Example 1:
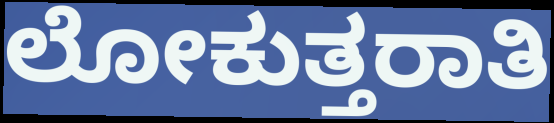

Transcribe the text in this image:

ಲೋಕುತ್ತರಾತಿ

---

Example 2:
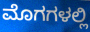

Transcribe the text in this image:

ಮೊಗಗಳಲ್ಲಿ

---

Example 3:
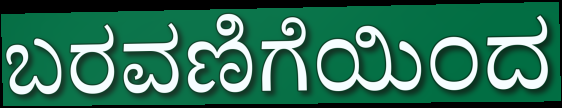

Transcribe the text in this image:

ಬರವಣಿಗೆಯಿಂದ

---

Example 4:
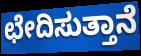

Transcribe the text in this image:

ಛೇದಿಸುತ್ತಾನೆ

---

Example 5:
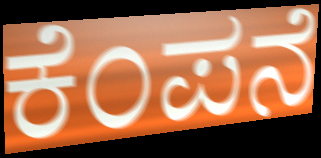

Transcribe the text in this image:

ಕೆಂಪನೆ